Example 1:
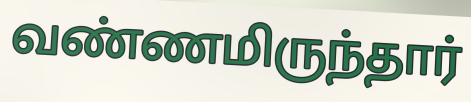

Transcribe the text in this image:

வண்ணமிருந்தார்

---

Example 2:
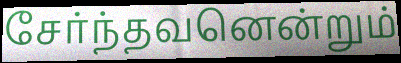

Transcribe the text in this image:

சேர்ந்தவனென்றும்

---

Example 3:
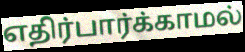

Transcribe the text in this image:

எதிர்பார்க்காமல்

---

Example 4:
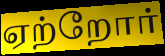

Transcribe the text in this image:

ஏற்றோர்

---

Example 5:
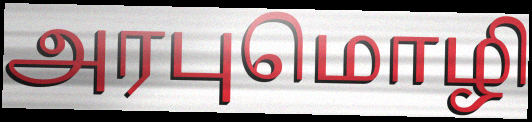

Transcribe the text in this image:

அரபுமொழி